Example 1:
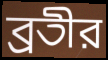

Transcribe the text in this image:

ব্রতীর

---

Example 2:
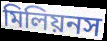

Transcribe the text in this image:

মিলিয়নস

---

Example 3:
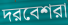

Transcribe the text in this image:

দরবেশরা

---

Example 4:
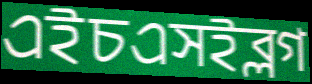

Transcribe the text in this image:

এইচএসইব্লগ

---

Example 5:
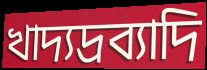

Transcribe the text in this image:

খাদ্যদ্রব্যাদি